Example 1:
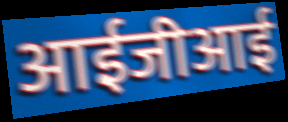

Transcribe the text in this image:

आईजीआई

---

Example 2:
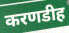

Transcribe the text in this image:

करणडीह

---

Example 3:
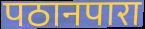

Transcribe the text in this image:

पठानपारा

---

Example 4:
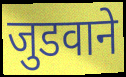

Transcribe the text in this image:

जुडवाने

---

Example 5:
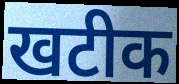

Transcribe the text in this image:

खटीक